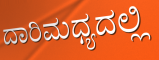
ದಾರಿಮಧ್ಯದಲ್ಲಿ